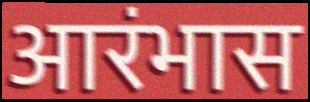
आरंभास